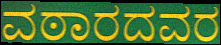
ವಠಾರದವರ